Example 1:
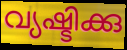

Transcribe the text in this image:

വ്യഷ്ടിക്കു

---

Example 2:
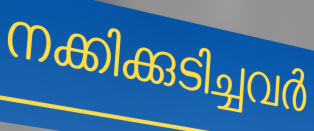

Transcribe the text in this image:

നക്കിക്കുടിച്ചവർ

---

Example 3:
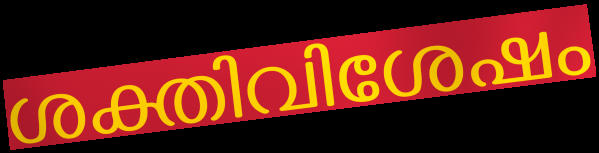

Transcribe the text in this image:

ശക്തിവിശേഷം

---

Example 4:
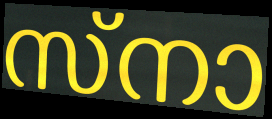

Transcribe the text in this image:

സ്‌നാ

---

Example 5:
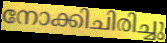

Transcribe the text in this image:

നോക്കിചിരിച്ചു